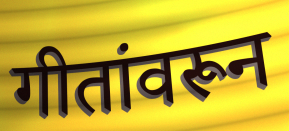
गीतांवरून